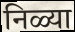
निळ्या